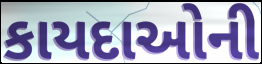
કાયદાઓની